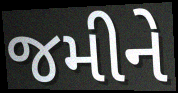
જમીને